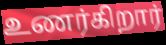
உணர்கிறார்